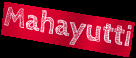
Mahayutti